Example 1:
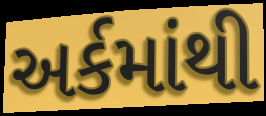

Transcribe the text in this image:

અર્કમાંથી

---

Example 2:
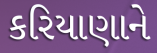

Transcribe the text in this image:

કરિયાણાને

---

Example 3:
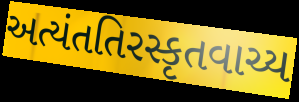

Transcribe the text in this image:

અત્યંતતિરસ્કૃતવાચ્ય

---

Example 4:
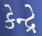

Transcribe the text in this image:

કેન્દ્રે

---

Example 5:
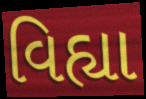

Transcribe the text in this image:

વિહ્યા